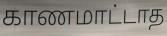
காணமாட்டாத